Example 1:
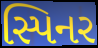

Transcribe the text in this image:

સ્પિનર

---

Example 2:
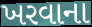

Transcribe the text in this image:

ખરવાના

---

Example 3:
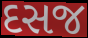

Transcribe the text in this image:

દસજ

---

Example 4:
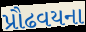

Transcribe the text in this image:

પ્રૌઢવયના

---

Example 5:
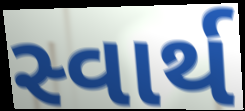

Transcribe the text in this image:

સ્વાર્થ